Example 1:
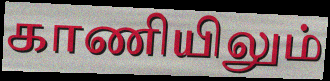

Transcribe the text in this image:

காணியிலும்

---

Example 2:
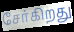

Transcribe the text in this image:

சேர்கிறது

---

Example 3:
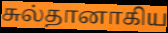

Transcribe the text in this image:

சுல்தானாகிய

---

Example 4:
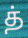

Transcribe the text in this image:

த்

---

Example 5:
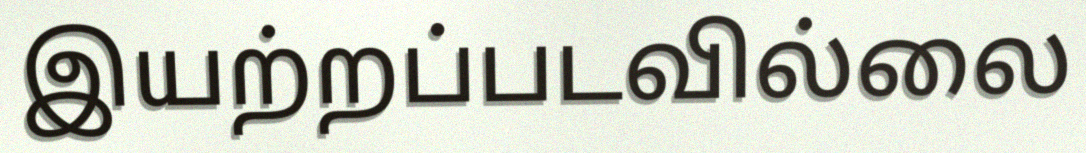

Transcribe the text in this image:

இயற்றப்படவில்லை